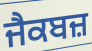
ਜੈਕਬਜ਼